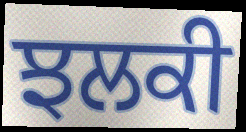
ਝਲਕੀ